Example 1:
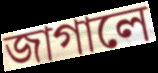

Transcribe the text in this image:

জাগালে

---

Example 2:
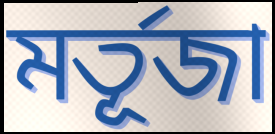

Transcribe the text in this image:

মর্তূজা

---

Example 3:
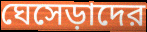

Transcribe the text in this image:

ঘেসেড়াদের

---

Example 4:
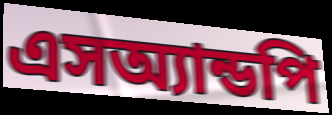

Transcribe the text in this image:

এসঅ্যান্ডপি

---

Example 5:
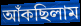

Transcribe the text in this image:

আঁকছিলাম